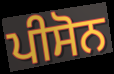
ਪੀਸੋਨ